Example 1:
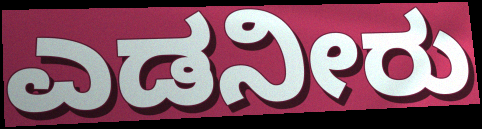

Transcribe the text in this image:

ಎಡನೀರು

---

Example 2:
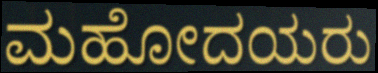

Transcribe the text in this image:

ಮಹೋದಯರು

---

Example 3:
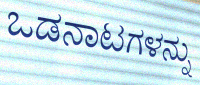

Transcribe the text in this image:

ಒಡನಾಟಗಳನ್ನು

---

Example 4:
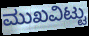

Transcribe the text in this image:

ಮುಖವಿಟ್ಟು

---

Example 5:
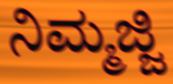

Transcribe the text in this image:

ನಿಮ್ಮಜ್ಜಿ